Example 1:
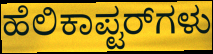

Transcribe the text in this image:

ಹೆಲಿಕಾಪ್ಟರ್‌ಗಳು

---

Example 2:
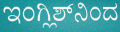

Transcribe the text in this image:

ಇಂಗ್ಲಿಶ್‌ನಿಂದ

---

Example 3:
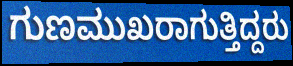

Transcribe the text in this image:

ಗುಣಮುಖರಾಗುತ್ತಿದ್ದರು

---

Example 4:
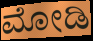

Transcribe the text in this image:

ಮೋಡಿ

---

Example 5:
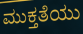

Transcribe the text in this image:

ಮುಕ್ತತೆಯು